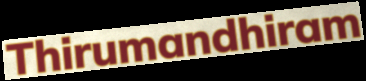
Thirumandhiram